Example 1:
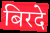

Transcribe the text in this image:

बिरदे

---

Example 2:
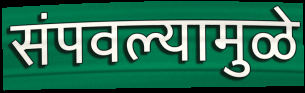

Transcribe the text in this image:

संपवल्यामुळे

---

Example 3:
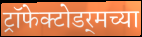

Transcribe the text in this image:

ट्रॉफेक्टोडर्मच्या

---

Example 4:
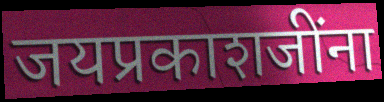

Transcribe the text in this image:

जयप्रकाशजींना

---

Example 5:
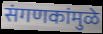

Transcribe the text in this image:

संगणकांमुळे